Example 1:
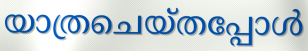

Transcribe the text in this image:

യാത്രചെയ്തപ്പോൾ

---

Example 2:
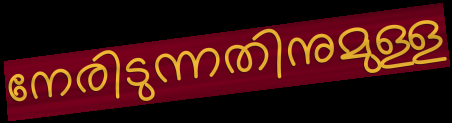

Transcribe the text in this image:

നേരിടുന്നതിനുമുള്ള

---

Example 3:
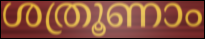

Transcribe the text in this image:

ശത്രൂണാം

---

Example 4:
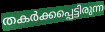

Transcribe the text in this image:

തകർക്കപ്പെട്ടിരുന്ന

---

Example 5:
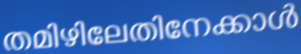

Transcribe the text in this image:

തമിഴിലേതിനേക്കാൾ